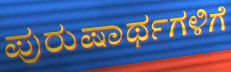
ಪುರುಷಾರ್ಥಗಳಿಗೆ